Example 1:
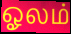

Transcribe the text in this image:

ஓலம்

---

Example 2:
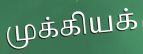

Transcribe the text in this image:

முக்கியக்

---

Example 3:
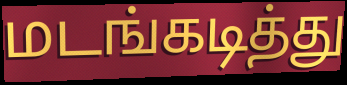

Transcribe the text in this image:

மடங்கடித்து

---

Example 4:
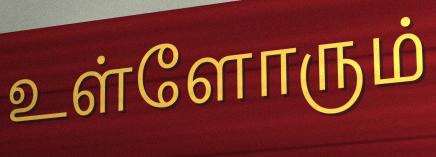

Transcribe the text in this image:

உள்ளோரும்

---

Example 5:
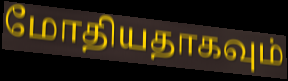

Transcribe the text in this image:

மோதியதாகவும்